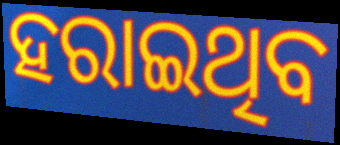
ହରାଇଥିବ